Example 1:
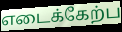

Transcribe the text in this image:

எடைக்கேற்ப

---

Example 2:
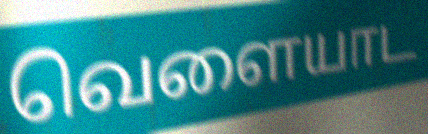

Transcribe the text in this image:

வெளையாட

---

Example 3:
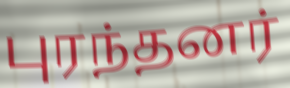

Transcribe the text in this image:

புரந்தனர்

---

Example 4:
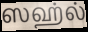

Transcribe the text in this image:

ஸஹ்ல்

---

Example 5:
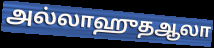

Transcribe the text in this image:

அல்லாஹுதஆலா